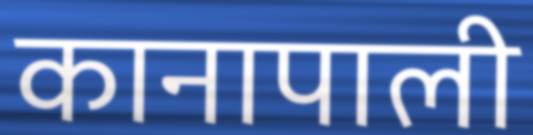
कानापाली